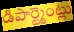
డిపార్ట్మెంట్లు